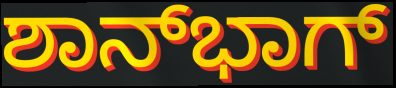
ಶಾನ್‍ಭಾಗ್